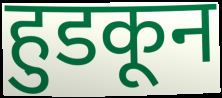
हुडकून